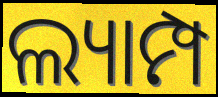
ଲ୍ୟାମ୍ପ